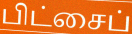
பிட்சைப்